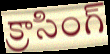
క్రాసింగ్